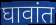
घावांत